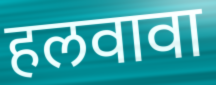
हलवावा